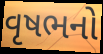
વૃષભનો